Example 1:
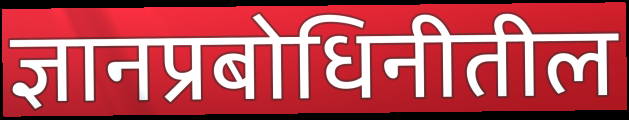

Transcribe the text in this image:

ज्ञानप्रबोधिनीतील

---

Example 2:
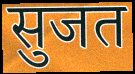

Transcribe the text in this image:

सुजत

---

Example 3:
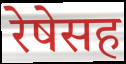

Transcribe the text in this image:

रेषेसह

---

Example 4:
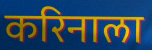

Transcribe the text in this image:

करिनाला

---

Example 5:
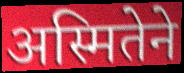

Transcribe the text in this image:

अस्मितेने